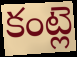
కంట్లె